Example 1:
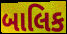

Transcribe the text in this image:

બાલિક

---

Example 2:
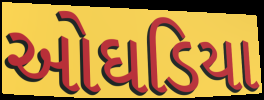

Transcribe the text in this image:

ઓઘડિયા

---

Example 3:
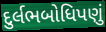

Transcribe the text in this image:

દુર્લભબોધિપણું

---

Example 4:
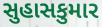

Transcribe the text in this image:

સુહાસકુમાર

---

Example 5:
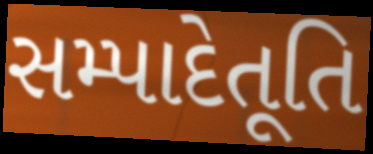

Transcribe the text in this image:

સમ્પાદેતૂતિ